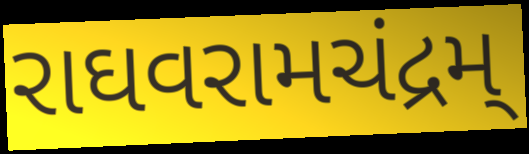
રાઘવરામચંદ્રમ્